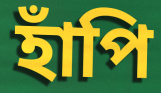
হাঁপি